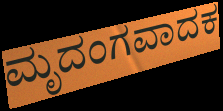
ಮೃದಂಗವಾದಕ